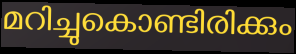
മറിച്ചുകൊണ്ടിരിക്കും